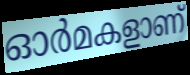
ഓർമകളാണ്